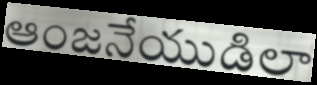
ఆంజనేయుడిలా